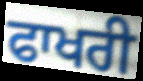
ਫਾਖਰੀ